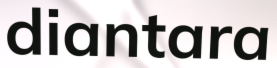
diantara